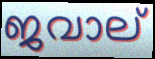
ജവാല്